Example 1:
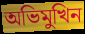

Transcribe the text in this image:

অভিমুখিন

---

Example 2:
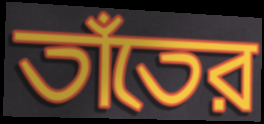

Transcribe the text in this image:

তাঁতের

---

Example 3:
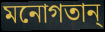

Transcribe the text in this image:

মনোগতান্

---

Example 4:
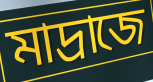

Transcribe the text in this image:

মাদ্রাজে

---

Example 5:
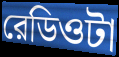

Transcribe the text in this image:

রেডিওটা